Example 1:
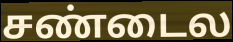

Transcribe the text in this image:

சண்டைல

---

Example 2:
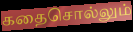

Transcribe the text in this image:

கதைசொல்லும்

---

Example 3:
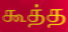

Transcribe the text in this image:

கூத்த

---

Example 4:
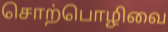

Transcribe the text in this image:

சொற்பொழிவை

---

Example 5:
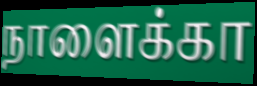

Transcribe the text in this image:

நாளைக்கா